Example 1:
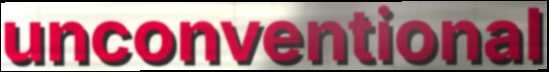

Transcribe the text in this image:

unconventional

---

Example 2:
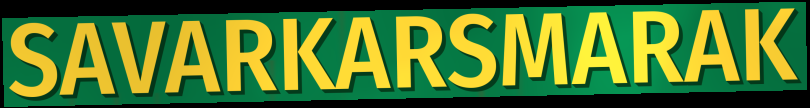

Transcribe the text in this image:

SAVARKARSMARAK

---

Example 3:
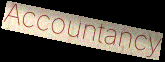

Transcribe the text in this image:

Accountancy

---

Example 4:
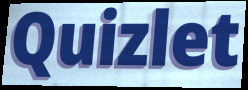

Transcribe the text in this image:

Quizlet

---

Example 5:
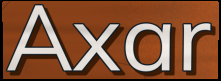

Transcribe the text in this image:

Axar